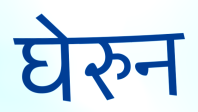
घेरुन